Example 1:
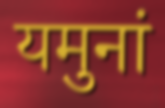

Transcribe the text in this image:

यमुनां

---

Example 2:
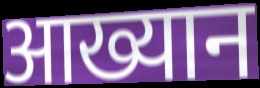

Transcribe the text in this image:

आख्यान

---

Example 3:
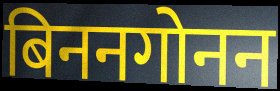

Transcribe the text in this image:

बिननगोनन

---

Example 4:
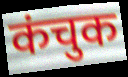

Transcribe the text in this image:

कंचुक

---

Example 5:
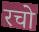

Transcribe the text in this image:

रचो